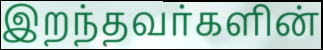
இறந்தவர்களின்